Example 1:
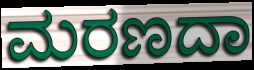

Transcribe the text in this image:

ಮರಣದಾ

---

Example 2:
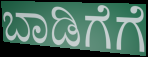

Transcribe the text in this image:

ಬಾಡಿಗೆಗೆ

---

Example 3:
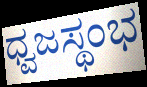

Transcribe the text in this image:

ಧ್ವಜಸ್ಥಂಭ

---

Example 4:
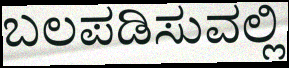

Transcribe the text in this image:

ಬಲಪಡಿಸುವಲ್ಲಿ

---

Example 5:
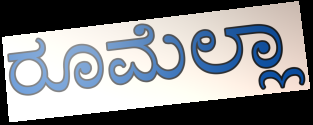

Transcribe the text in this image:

ರೂಮೆಲ್ಲಾ